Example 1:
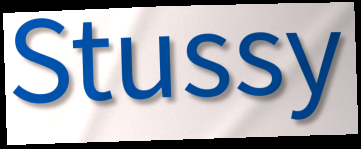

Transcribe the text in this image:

Stussy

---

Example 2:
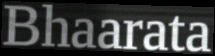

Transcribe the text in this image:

Bhaarata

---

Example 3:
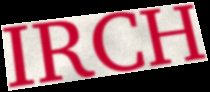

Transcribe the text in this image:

IRCH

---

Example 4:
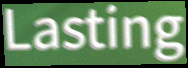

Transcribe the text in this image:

Lasting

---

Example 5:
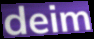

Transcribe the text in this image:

deim